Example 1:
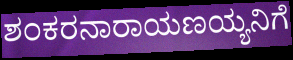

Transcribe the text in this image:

ಶಂಕರನಾರಾಯಣಯ್ಯನಿಗೆ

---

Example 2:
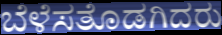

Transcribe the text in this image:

ಬೆಳೆಸತೊಡಗಿದರು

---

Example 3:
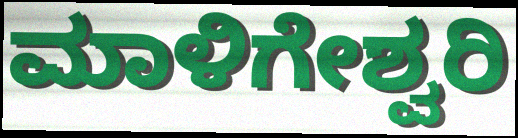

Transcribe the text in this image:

ಮಾಳಿಗೇಶ್ವರಿ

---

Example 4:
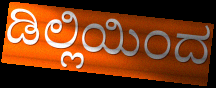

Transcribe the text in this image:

ಡಿಲ್ಲಿಯಿಂದ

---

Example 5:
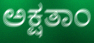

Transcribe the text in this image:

ಅಕ್ಷತಾಂ